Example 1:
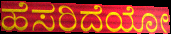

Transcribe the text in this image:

ಹೆಸರಿದೆಯೋ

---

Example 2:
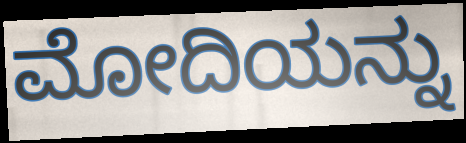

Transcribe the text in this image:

ಮೋದಿಯನ್ನು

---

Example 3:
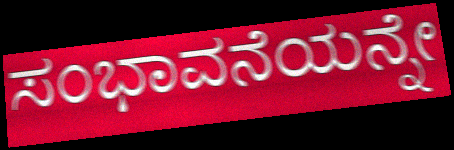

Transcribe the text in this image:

ಸಂಭಾವನೆಯನ್ನೇ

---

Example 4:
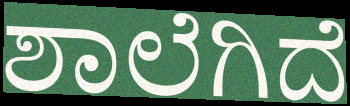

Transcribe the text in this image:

ಶಾಲೆಗಿದೆ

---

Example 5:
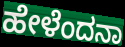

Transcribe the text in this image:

ಹೇಳೆಂದನಾ